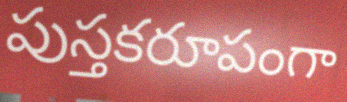
పుస్తకరూపంగా